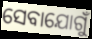
ସେବାଯୋଗୁଁ